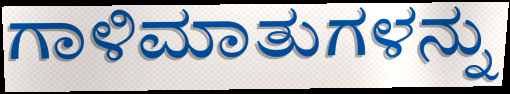
ಗಾಳಿಮಾತುಗಳನ್ನು